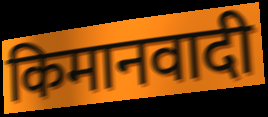
किमानवादी